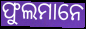
ଫୁଲମାନେ